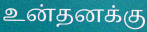
உன்தனக்கு